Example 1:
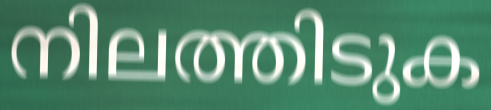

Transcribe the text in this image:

നിലത്തിടുക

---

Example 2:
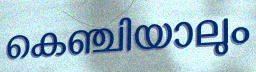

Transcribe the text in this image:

കെഞ്ചിയാലും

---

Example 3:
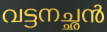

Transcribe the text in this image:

വട്ടനച്ഛൻ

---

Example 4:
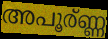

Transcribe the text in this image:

അപൂര്ണ്ണ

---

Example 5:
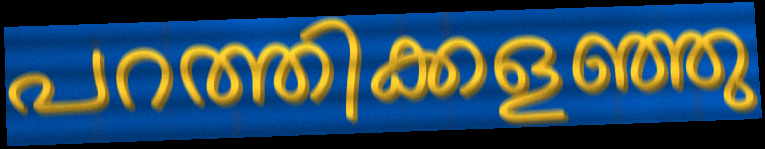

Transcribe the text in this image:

പറത്തിക്കളഞ്ഞു